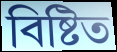
বিষ্টিত